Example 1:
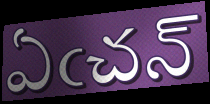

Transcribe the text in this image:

ఏఁచన్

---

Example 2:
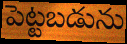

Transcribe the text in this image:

పెట్టబడును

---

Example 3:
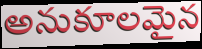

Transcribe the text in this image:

అనుకూలమైన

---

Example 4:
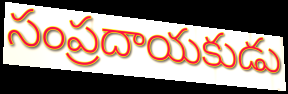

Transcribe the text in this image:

సంప్రదాయకుడు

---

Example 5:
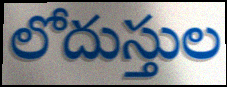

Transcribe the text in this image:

లోదుస్తుల